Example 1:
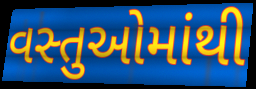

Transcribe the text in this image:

વસ્તુઓમાંથી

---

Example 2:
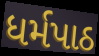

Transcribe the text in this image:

ધર્મપાઠ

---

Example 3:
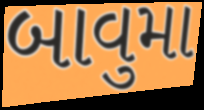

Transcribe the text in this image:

બાવુમા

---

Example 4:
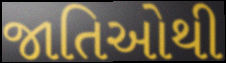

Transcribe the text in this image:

જાતિઓથી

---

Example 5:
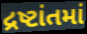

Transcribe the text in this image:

દ્રષ્ટાંતમાં